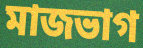
মাজভাগ